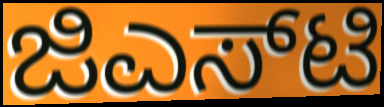
ಜಿಎಸ್‌ಟಿ